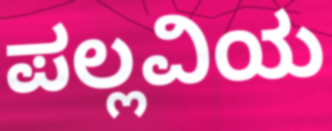
ಪಲ್ಲವಿಯ